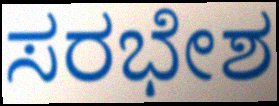
ಸರಭೇಶ